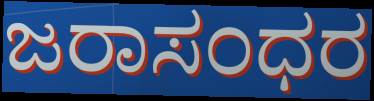
ಜರಾಸಂಧರ